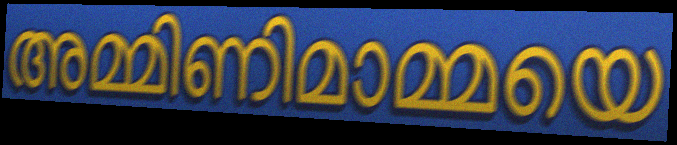
അമ്മിണിമാമ്മയെ